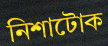
নিশাটোক